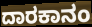
ದಾರಕಾನಂ